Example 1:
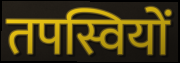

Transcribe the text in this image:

तपस्वियों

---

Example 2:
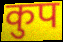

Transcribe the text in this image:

कुप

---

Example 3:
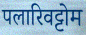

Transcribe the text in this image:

पलारिवट्टोम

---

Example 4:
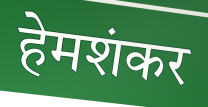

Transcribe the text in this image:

हेमशंकर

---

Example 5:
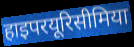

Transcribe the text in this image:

हाइपरयूरिसीमिया